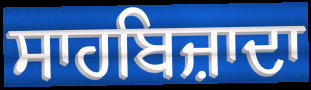
ਸਾਹਬਿਜ਼ਾਦਾ